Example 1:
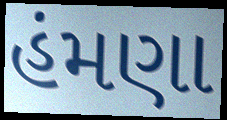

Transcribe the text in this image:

હંમણા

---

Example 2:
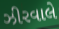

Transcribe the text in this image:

ઝીરવાલે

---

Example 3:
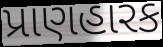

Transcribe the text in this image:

પ્રાણહારક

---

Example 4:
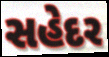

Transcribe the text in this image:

સહેદર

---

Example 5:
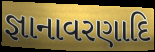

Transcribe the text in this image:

જ્ઞાનાવરણાદિ